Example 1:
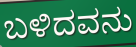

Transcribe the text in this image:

ಬಳಿದವನು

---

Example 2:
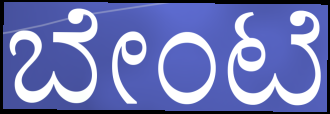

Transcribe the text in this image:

ಬೇಂಟೆ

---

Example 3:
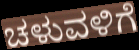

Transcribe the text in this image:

ಚಳುವಳಿಗೆ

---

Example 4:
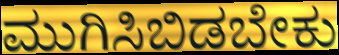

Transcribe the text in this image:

ಮುಗಿಸಿಬಿಡಬೇಕು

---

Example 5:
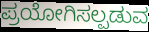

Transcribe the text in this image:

ಪ್ರಯೋಗಿಸಲ್ಪಡುವ